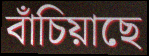
বাঁচিয়াছে